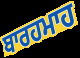
ਬਾਰਹਮਾਹ